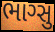
ભાગ્સુ